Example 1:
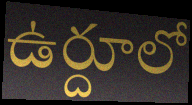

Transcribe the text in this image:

ఉర్దూలో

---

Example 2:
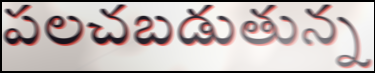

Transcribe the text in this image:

పలచబడుతున్న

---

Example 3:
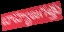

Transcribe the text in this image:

బాహ్యజగత్తు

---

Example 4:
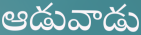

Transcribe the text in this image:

ఆడువాడు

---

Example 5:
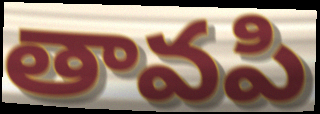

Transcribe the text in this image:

తావపి